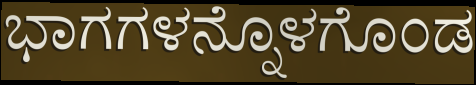
ಭಾಗಗಳನ್ನೊಳಗೊಂಡ